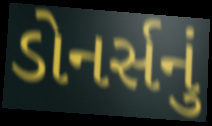
ડોનર્સનું